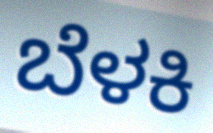
ಬೆಳಕಿ